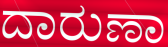
ದಾರುಣಾ